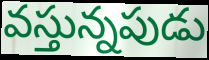
వస్తున్నపుడు